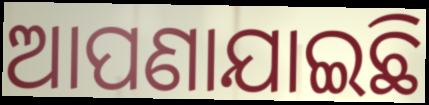
ଆପଣାଯାଇଛି